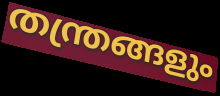
തന്ത്രങ്ങളും